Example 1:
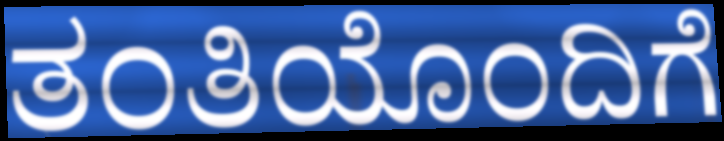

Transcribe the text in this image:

ತಂತಿಯೊಂದಿಗೆ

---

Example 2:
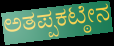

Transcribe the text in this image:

ಅತಪ್ಪಕಟ್ಠೇನ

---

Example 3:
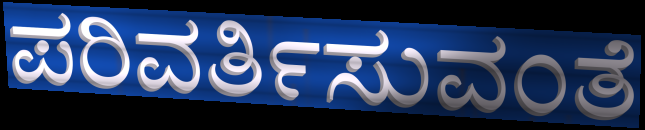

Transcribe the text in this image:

ಪರಿವರ್ತಿಸುವಂತೆ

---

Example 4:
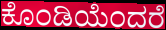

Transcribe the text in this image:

ಕೊಂಡಿಯೆಂದರೆ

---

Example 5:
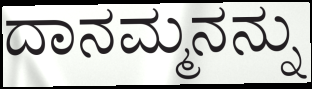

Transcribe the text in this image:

ದಾನಮ್ಮನನ್ನು